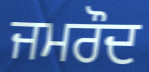
ਜਮਰੌਦ